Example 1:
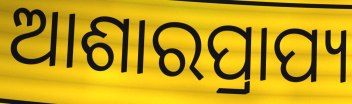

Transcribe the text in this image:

ଆଶାରପ୍ରାପ୍ୟ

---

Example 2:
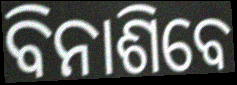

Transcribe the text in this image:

ବିନାଶିବେ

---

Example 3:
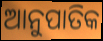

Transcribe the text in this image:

ଆନୁପାତିକ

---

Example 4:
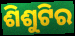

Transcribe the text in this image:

ଶିଶୁଟିର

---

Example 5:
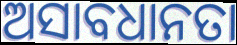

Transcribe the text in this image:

ଅସାବଧାନତା